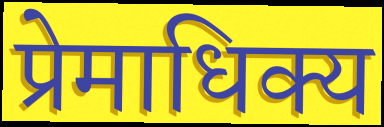
प्रेमाधिक्य